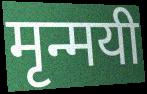
मृन्मयी